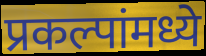
प्रकल्पांमध्ये